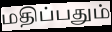
மதிப்பதும்